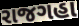
રાજગહા